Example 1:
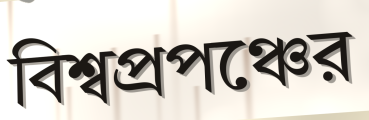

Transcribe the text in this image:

বিশ্বপ্রপঞ্চের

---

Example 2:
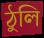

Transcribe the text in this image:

ঠুলি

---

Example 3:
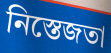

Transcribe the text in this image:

নিস্তেজতা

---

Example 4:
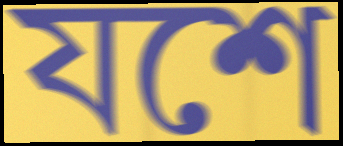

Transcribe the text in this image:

যশে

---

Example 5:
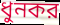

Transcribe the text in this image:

ধুনকর